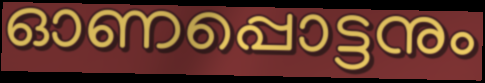
ഓണപ്പൊട്ടനും